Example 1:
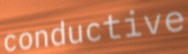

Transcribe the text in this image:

conductive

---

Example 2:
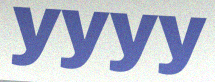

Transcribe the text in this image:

yyyy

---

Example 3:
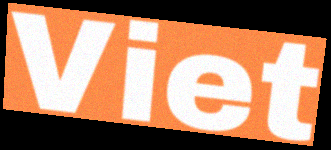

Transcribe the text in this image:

Viet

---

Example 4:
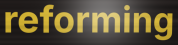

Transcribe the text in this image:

reforming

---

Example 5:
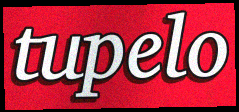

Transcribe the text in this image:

tupelo